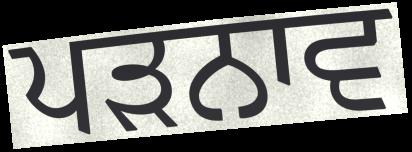
ਪੜਨਾਵ